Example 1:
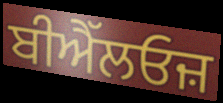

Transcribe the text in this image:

ਬੀਐੱਲਓਜ਼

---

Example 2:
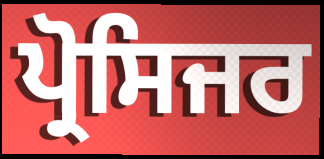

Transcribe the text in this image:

ਪ੍ਰੋਸਿਜਰ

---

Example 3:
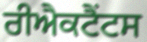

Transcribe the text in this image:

ਰੀਐਕਟੈਂਟਸ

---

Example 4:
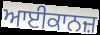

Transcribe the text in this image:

ਆਈਕਾਨਜ਼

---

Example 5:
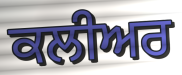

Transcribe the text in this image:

ਕਲੀਅਰ